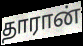
தாரான்